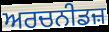
ਅਰਚਨੀਡਜ਼